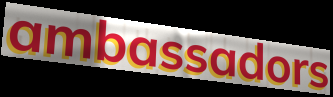
ambassadors